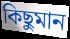
কিছুমান